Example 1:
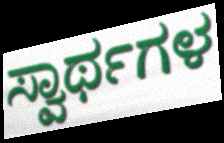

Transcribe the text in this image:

ಸ್ವಾರ್ಥಗಳ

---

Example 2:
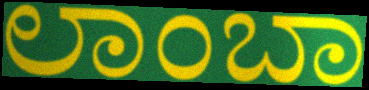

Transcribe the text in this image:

ಲಾಂಬಾ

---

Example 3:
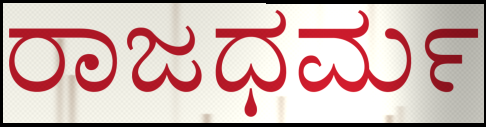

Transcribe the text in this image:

ರಾಜಧರ್ಮ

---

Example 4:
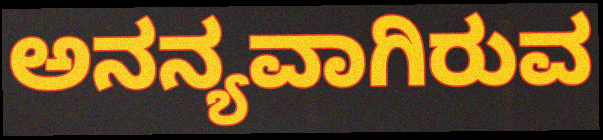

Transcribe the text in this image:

ಅನನ್ಯವಾಗಿರುವ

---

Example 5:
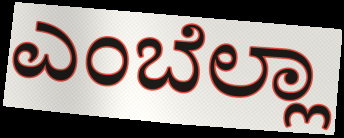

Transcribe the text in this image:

ಎಂಬೆಲ್ಲಾ